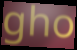
gho